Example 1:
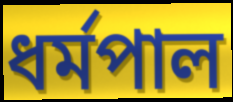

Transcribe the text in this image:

ধৰ্মপাল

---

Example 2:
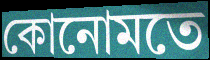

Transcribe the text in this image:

কোনোমতে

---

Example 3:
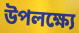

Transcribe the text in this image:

উপলক্ষ্যে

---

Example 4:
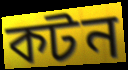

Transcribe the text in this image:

কটন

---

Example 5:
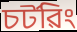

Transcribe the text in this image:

চৰ্টৱিং